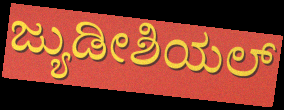
ಜ್ಯುಡೀಶಿಯಲ್